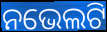
ନଭେଲଟି